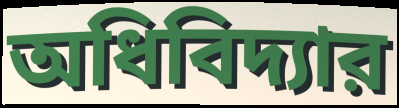
অধিবিদ্যার